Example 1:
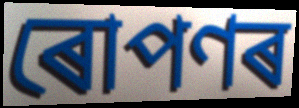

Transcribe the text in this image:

ৰোপণৰ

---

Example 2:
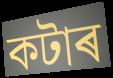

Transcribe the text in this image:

কটাৰ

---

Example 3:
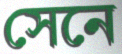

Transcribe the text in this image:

সেনে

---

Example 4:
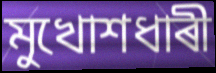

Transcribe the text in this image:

মুখোশধাৰী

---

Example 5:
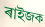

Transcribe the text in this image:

ৰাইজক